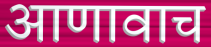
आणावाच